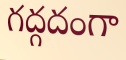
గద్గదంగా